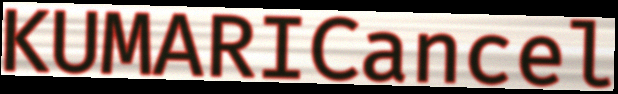
KUMARICancel